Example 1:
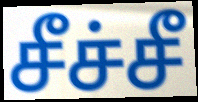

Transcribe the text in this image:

சீச்சீ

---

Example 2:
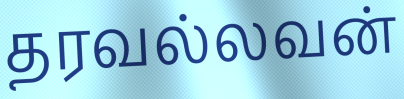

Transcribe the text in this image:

தரவல்லவன்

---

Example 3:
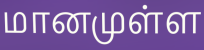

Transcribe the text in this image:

மானமுள்ள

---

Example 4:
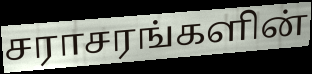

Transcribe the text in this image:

சராசரங்களின்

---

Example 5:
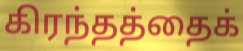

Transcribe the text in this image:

கிரந்தத்தைக்